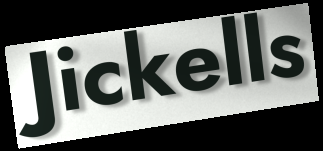
Jickells